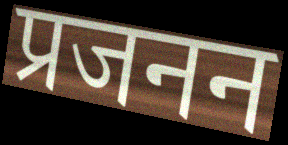
प्रजनन